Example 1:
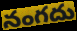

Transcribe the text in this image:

నంగదు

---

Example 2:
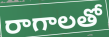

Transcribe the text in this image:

రాగాలతో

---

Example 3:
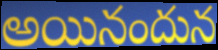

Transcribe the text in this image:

అయినందున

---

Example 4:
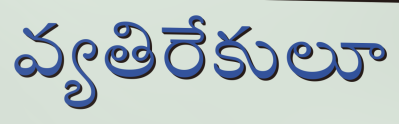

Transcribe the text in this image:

వ్యతిరేకులూ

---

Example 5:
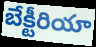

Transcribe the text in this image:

బేక్టీరియా